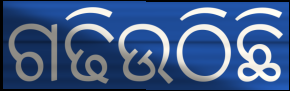
ଗଢିଉଠିଛି